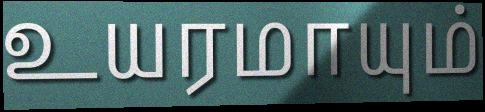
உயரமாயும்